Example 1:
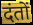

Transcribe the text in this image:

दंतों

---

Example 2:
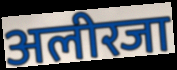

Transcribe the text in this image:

अलीरजा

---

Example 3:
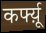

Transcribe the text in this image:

कर्फ्य़ू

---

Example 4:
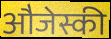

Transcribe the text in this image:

औजेस्की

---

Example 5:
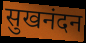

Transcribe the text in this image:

सुखनंदन